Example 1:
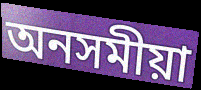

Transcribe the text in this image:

অনসমীয়া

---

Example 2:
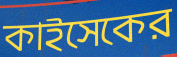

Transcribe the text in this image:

কাইসেকের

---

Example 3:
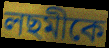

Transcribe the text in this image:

লছমীকে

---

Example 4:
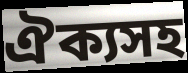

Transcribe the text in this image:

ঐক্যসহ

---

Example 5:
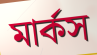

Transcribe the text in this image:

মার্কস